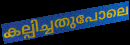
കല്പിച്ചതുപോലെ